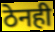
ठेनही